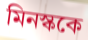
মিনস্ককে